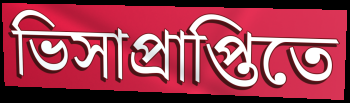
ভিসাপ্রাপ্তিতে